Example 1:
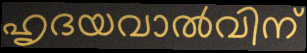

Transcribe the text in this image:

ഹൃദയവാൽവിന്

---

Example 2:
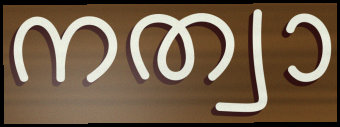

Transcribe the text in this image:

നത്വാ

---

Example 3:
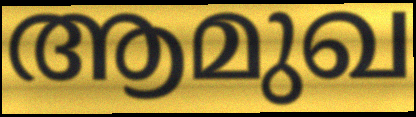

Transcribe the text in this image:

ആമുഖ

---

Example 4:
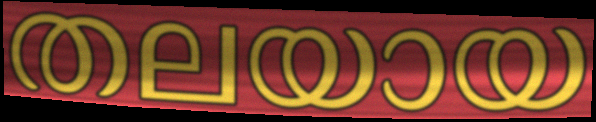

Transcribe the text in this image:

തലയായ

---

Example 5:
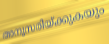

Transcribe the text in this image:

അനുസരിയ്ക്കുകയും